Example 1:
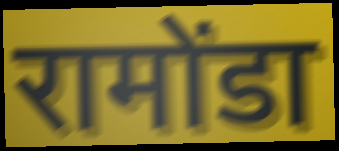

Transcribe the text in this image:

रामोंडा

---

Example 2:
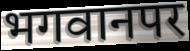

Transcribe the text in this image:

भगवानपर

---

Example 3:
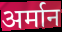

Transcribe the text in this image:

अर्मान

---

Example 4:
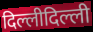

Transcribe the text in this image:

दिल्लीदिल्ली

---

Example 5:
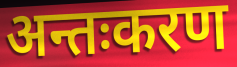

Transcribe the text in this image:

अन्तःकरण